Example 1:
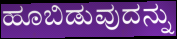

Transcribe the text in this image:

ಹೂಬಿಡುವುದನ್ನು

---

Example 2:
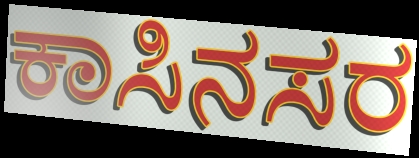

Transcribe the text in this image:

ಕಾಸಿನಸರ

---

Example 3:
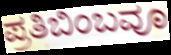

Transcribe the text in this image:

ಪ್ರತಿಬಿಂಬವೂ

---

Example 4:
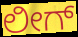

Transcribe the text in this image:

ಲೀಗ್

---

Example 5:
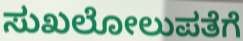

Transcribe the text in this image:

ಸುಖಲೋಲುಪತೆಗೆ